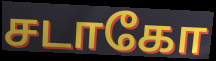
சடாகோ